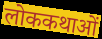
लोककथाओं